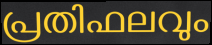
പ്രതിഫലവും